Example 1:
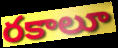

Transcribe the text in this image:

రకాలూ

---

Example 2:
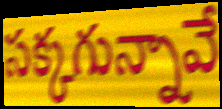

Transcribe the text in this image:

సక్కగున్నావే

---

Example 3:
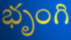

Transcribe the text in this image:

భృంగి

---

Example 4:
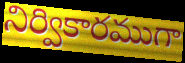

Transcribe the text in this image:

నిర్వికారముగా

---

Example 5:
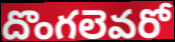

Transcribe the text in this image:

దొంగలెవరో